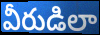
వీరుడిలా